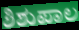
ಶಿಶುಪಾಲ